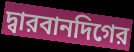
দ্বারবানদিগের